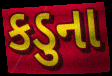
કડુના